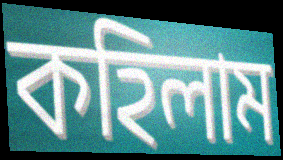
কহিলাম